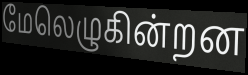
மேலெழுகின்றன